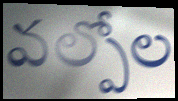
వల్పోల